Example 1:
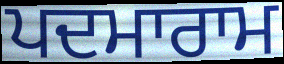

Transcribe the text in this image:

ਪਦਮਾਰਾਮ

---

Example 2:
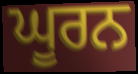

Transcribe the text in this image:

ਘੂਰਨ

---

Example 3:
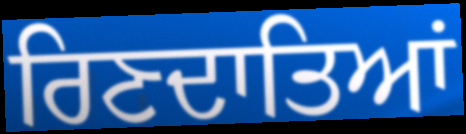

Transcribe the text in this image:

ਰਿਣਦਾਤਿਆਂ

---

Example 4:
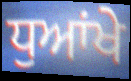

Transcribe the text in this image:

ਧੁਆਂਖੇ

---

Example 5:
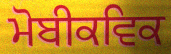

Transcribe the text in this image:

ਮੋਬੀਕਵਿਕ